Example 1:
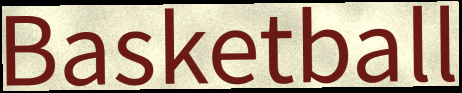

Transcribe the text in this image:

Basketball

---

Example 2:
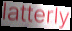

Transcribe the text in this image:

latterly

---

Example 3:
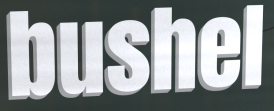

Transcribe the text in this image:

bushel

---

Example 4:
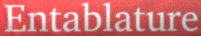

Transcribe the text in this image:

Entablature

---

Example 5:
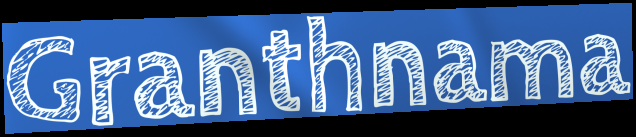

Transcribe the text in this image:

Granthnama